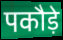
पकौड़े